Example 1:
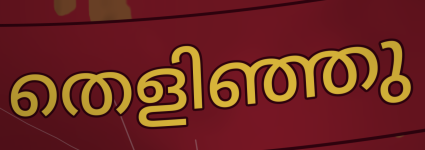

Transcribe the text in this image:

തെളിഞ്ഞു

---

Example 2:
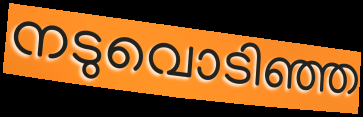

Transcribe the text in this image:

നടുവൊടിഞ്ഞ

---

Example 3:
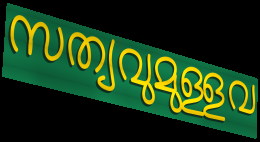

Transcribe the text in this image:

സത്യവുമുള്ളവ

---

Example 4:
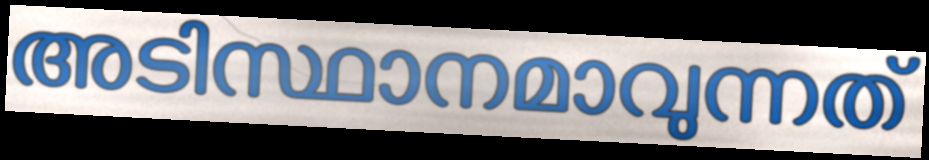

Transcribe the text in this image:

അടിസ്ഥാനമാവുന്നത്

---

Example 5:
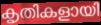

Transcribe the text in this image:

കൃതികളായി